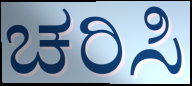
ಚರಿಸಿ